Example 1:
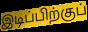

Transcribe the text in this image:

இடிப்பிற்குப்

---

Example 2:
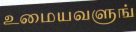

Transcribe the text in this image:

உமையவளுங்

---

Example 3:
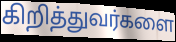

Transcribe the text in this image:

கிறித்துவர்களை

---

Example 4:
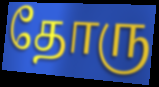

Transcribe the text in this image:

தோரு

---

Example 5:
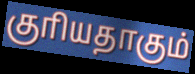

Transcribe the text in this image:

குரியதாகும்